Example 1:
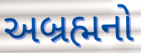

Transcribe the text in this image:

અબ્રહ્મનો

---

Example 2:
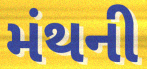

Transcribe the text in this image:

મંથની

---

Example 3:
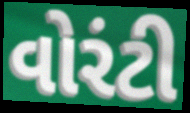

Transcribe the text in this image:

વોરંટી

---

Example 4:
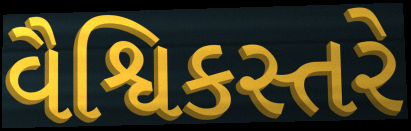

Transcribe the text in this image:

વૈશ્વિકસ્તરે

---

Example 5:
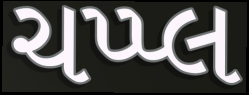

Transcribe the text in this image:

ચપ્પ્લ